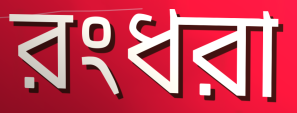
রংধরা